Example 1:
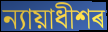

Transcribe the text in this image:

ন্যায়াধীশৰ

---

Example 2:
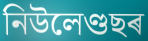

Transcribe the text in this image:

নিউলেণ্ডছৰ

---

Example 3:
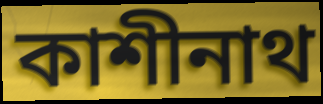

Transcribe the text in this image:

কাশীনাথ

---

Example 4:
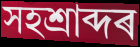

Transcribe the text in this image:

সহশ্ৰাব্দৰ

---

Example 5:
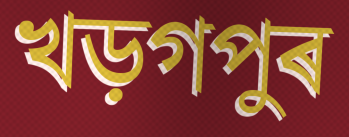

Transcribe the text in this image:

খড়গপুৰ